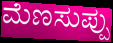
ಮೆಣಸುಪ್ಪು